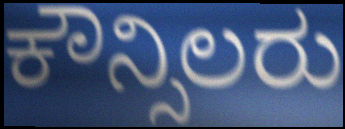
ಕೌನ್ಸಿಲರು